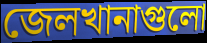
জেলখানাগুলো